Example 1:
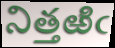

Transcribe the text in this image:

నిత్తఱిఁ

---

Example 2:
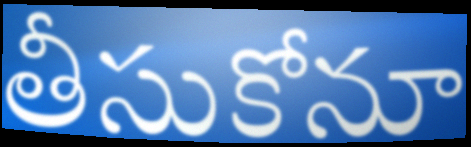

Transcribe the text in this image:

తీసుకోనూ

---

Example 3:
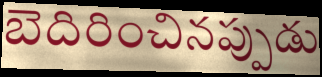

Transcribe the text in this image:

బెదిరించినప్పుడు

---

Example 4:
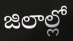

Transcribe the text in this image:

జిలాల్లో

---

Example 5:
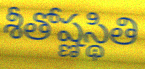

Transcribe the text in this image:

శీతోష్ణస్థితి